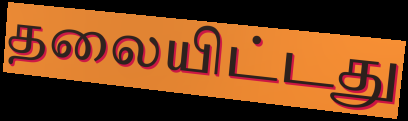
தலையிட்டது